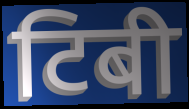
टिबी